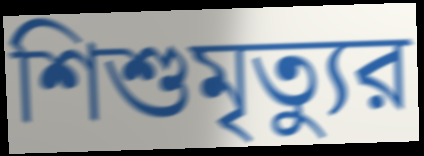
শিশুমৃত্যুর